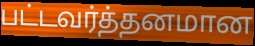
பட்டவர்த்தனமான